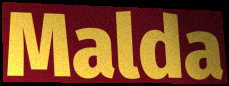
Malda